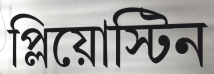
প্লিয়োস্টিন